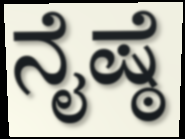
ನೈಷ್ಠೆ